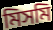
মিসমি